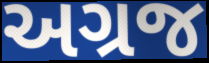
અગ્રજ